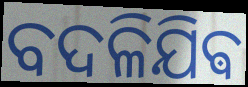
ବଦଳିଯିଵ